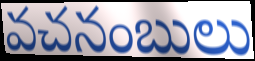
వచనంబులు